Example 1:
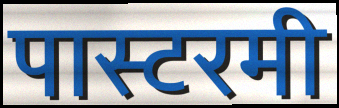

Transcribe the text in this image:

पास्टरमी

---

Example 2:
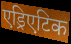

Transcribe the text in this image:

एड्रिएटिक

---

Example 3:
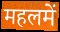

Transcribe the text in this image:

महलमें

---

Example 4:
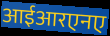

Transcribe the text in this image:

आईआरएनए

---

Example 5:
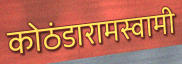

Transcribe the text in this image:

कोठंडारामस्वामी